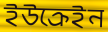
ইউক্রেইন